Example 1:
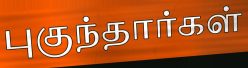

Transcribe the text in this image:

புகுந்தார்கள்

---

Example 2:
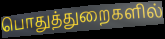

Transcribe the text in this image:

பொதுத்துறைகளில்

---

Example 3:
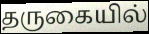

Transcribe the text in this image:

தருகையில்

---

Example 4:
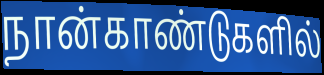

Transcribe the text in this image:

நான்காண்டுகளில்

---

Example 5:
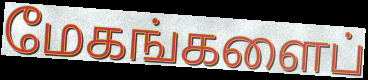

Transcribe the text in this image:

மேகங்களைப்